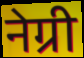
नेग्री